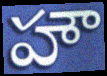
హౌ